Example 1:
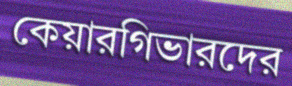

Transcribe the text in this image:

কেয়ারগিভারদের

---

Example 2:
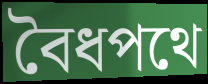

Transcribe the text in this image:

বৈধপথে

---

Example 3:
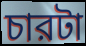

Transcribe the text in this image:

চারটা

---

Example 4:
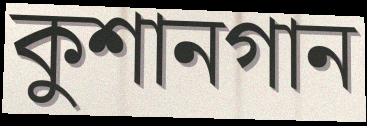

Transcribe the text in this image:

কুশানগান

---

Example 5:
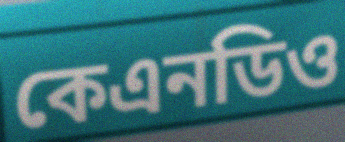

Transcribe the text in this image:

কেএনডিও